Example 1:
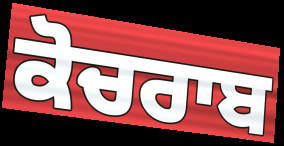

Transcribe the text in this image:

ਕੋਚਰਾਬ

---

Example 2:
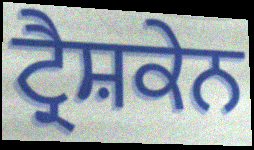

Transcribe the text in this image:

ਟ੍ਰੈਸ਼ਕੇਨ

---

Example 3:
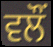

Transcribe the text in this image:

ਵਲੌਂ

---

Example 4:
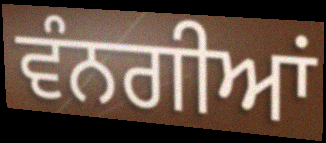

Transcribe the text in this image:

ਵੰਨਗੀਆਂ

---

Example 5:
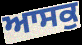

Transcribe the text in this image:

ਆਸਕੁ